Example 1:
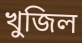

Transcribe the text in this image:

খুজিল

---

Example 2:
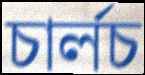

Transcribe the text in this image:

চাৰ্লচ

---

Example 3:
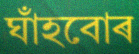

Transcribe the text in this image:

ঘাঁহবোৰ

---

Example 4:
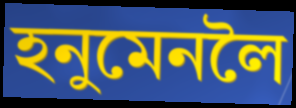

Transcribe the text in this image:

হনুমেনলৈ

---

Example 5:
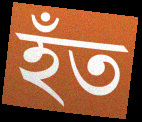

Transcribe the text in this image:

হঁত